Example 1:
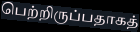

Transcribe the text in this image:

பெற்றிருப்பதாகத்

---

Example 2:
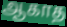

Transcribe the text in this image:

ஆகாத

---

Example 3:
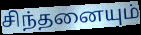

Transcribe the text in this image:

சிந்தனையும்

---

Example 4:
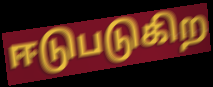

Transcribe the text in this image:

ஈடுபடுகிற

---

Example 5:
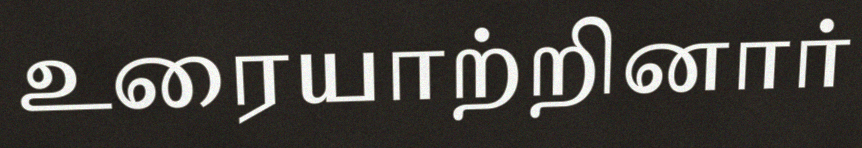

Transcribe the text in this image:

உரையாற்றினார்